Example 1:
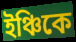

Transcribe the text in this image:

ইঞ্চিকে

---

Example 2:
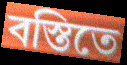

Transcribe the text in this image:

বস্তিতে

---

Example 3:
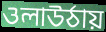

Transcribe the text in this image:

ওলাউঠায়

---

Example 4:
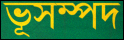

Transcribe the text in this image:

ভূসম্পদ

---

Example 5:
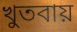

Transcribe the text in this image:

খুতবায়